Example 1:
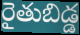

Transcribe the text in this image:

రైతుబిడ్డ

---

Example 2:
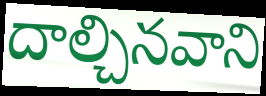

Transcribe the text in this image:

దాల్చినవాని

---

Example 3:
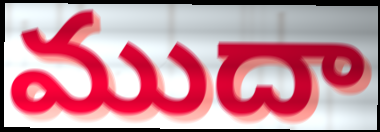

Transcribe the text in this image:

ముదా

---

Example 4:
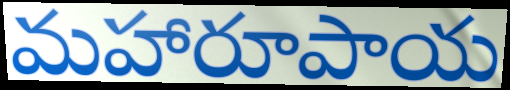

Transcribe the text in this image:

మహారూపాయ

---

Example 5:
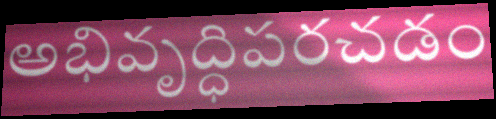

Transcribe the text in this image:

అభివృద్ధిపరచడం